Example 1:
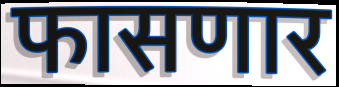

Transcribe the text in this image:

फासणार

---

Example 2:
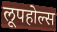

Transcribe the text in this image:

लूपहोल्स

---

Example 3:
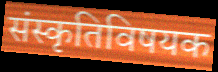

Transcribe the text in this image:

संस्कृतिविषयक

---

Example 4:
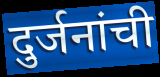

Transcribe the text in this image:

दुर्जनांची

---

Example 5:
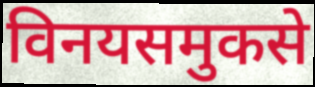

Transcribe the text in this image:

विनयसमुकसे